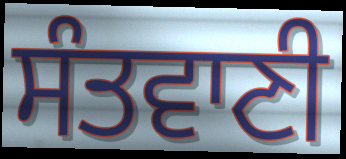
ਸੰਤਵਾਣੀ